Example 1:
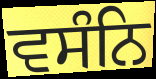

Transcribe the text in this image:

ਵਸੰਨਿ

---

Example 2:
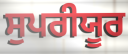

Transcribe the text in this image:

ਸੁਪਰੀਯੂਰ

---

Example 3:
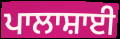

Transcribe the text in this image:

ਪਾਲਾਸ਼ਾਈ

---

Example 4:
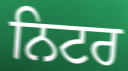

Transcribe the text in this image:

ਨਿਟਰ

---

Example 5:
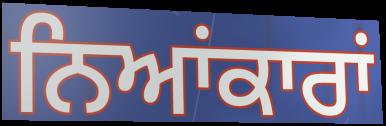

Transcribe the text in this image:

ਨਿਆਂਕਾਰਾਂ